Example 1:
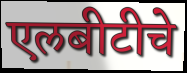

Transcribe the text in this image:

एलबीटीचे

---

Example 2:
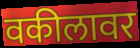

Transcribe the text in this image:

वकीलावर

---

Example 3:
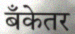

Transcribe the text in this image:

बँकेतर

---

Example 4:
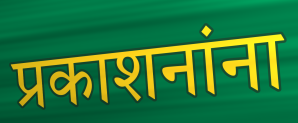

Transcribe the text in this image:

प्रकाशनांना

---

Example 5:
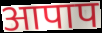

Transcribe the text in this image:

आपाप